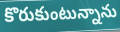
కొరుకుంటున్నాను